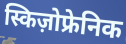
स्किज़ोफ्रेनिक